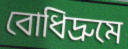
বোধিদ্রুমে